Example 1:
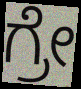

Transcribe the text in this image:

ಗ್ರೇ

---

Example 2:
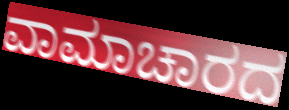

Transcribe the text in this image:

ವಾಮಾಚಾರದ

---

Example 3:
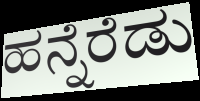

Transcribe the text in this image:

ಹನ್ನೆರೆಡು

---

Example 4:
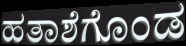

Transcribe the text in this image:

ಹತಾಶೆಗೊಂಡ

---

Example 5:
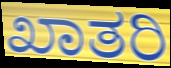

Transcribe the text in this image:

ಖಾತರಿ